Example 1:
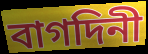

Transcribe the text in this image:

বাগদিনী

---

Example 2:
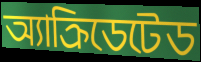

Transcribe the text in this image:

অ্যাক্রিডেটেড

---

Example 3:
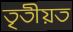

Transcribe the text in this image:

তৃতীয়ত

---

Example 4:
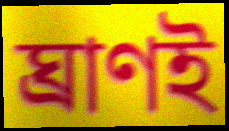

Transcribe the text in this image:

ঘ্রাণই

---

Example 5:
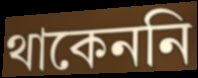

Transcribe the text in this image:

থাকেননি